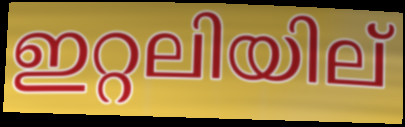
ഇറ്റലിയില്